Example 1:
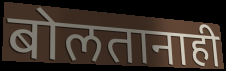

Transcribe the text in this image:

बोलतानाही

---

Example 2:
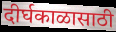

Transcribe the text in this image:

दीर्घकाळासाठी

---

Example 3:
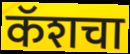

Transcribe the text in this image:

कॅशचा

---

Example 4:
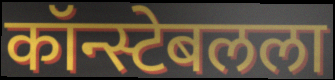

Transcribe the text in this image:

कॉन्स्टेबलला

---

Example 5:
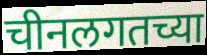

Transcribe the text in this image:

चीनलगतच्या